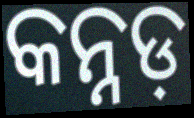
କନ୍ନଡ଼